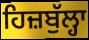
ਹਿਜ਼ਬੁੱਲ੍ਹਾ